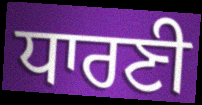
ਧਾਰਣੀ